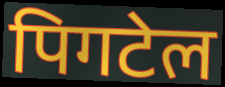
पिगटेल